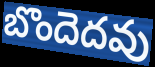
బొందెదవు